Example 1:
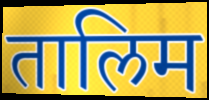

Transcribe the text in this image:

तालिम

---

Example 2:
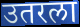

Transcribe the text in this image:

उतरला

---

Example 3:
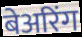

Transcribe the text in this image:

बेअरिंग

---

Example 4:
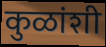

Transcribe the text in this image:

कुळांशी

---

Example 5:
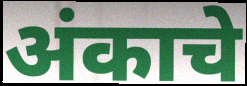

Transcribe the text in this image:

अंकाचे